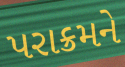
પરાક્રમને